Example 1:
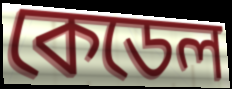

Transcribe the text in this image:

কেডেল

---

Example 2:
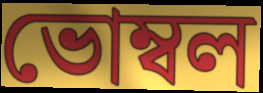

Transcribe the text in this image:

ভোম্বল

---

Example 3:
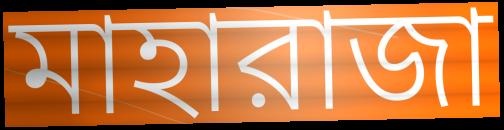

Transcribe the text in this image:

মাহারাজা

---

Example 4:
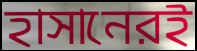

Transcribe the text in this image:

হাসানেরই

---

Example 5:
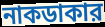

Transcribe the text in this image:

নাকডাকার